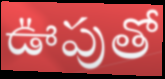
ఊపుతో